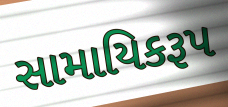
સામાયિકરૂપ